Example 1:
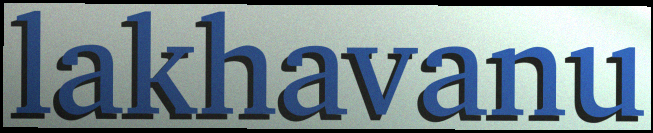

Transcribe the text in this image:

lakhavanu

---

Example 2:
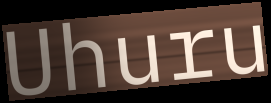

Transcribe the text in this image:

Uhuru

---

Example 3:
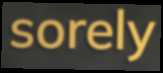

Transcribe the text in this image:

sorely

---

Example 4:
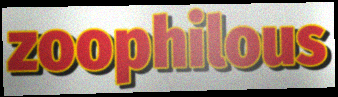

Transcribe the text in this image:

zoophilous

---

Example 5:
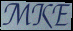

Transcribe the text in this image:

MKE